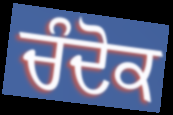
ਚੰਦੋਕ